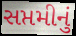
સપ્તમીનું